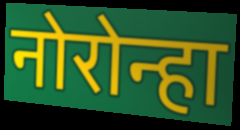
नोरोन्हा